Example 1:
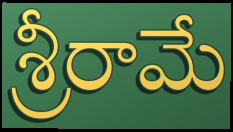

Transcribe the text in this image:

శ్రీరామే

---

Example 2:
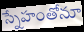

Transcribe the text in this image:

స్నేహంతోనూ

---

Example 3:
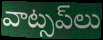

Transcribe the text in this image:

వాట్సప్‌లు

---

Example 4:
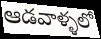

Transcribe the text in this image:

ఆడవాళ్ళలో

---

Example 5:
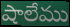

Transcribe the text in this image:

షాలేము